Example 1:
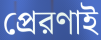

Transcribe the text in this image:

প্রেরণাই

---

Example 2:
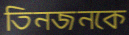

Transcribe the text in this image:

তিনজনকে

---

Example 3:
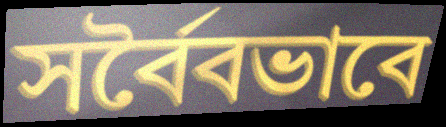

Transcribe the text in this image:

সর্বৈবভাবে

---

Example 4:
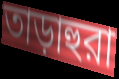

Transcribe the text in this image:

তাড়াহুরা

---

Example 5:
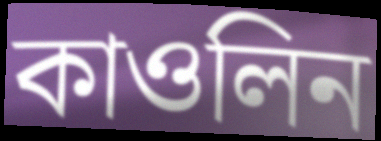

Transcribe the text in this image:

কাওলিন